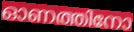
ഓണത്തിനോ